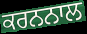
ਕਰਨਨਾਲ